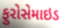
ફુરોસેમાઇડ